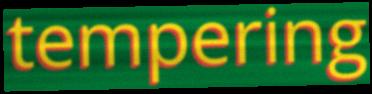
tempering